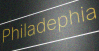
Philadephia